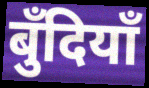
बुँदियाँ